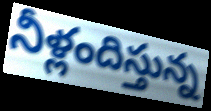
నీళ్లందిస్తున్న